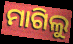
ମାଗିଲୁ